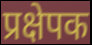
प्रक्षेपक